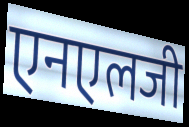
एनएलजी